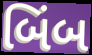
બિંબ